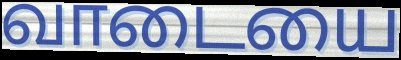
வாடையை